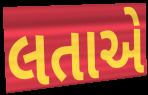
લતાએ